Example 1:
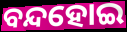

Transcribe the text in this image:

ବନ୍ଦହୋଇ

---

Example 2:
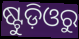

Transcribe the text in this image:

ଷ୍ଟୁଡ଼ିଓରୁ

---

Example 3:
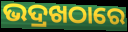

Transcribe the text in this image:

ଭଦ୍ରଖଠାରେ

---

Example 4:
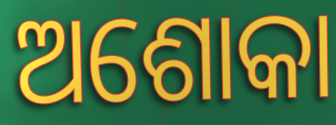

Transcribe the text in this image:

ଅଶୋକା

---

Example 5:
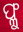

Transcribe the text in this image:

ଫ୍ଳୁ